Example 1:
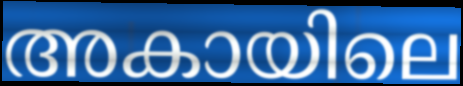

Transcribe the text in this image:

അകായിലെ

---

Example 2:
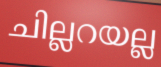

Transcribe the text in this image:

ചില്ലറയല്ല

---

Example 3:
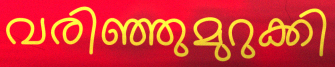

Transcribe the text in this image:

വരിഞ്ഞുമുറുക്കി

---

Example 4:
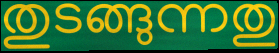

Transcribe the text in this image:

തുടങ്ങുന്നതു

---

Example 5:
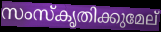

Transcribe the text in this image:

സംസ്കൃതിക്കുമേല്